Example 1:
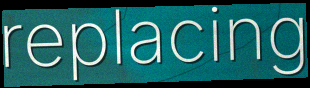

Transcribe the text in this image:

replacing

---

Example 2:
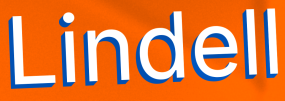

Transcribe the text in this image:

Lindell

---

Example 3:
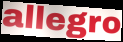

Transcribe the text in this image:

allegro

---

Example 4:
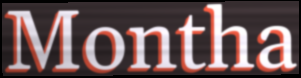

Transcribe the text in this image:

Montha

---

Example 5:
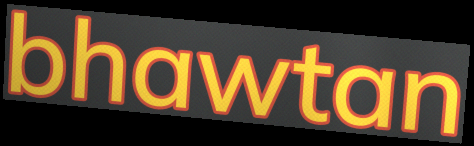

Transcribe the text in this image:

bhawtan